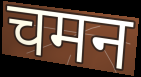
चमन